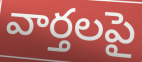
వార్తలపై